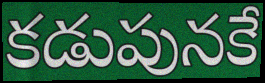
కడుపునకే